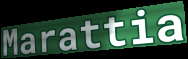
Marattia